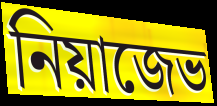
নিয়াজেভ